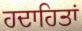
ਹਦਾਹਿਤਾਂ